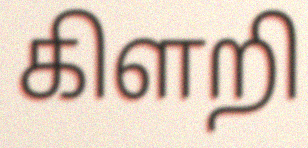
கிளறி